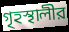
গৃহস্থালীর